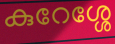
കുറേശ്ശേ